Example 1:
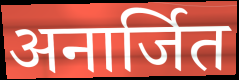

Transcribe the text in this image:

अनार्जित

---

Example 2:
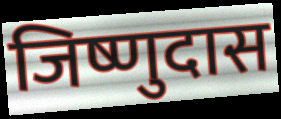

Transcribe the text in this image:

जिष्णुदास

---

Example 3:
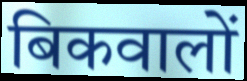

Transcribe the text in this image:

बिकवालों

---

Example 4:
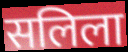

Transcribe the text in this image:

सलिला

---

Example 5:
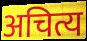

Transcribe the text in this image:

अचित्य